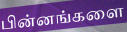
பின்னங்களை